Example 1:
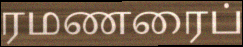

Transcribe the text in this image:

ரமணரைப்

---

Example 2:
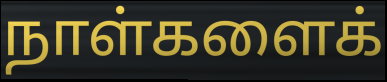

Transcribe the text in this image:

நாள்களைக்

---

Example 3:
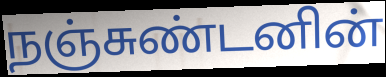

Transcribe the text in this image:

நஞ்சுண்டனின்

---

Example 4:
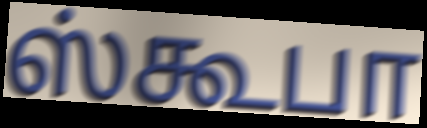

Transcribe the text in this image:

ஸ்கூபா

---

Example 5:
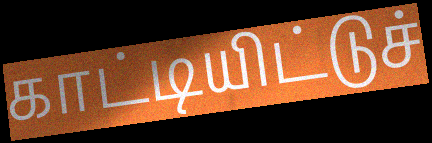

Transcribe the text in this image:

காட்டியிட்டுச்